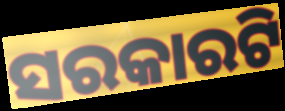
ସରକାରଟି